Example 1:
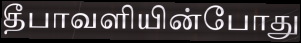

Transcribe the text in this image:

தீபாவளியின்போது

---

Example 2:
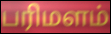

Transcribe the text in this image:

பரிமளம்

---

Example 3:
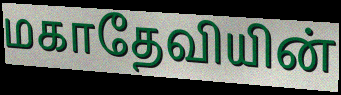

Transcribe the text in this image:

மகாதேவியின்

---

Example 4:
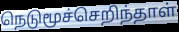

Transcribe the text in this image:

நெடுமூச்செறிந்தாள்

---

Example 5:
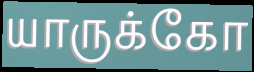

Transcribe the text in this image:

யாருக்கோ